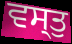
ਵਸ੍ਤੁ